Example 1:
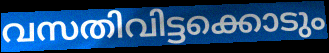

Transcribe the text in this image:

വസതിവിട്ടക്കൊടും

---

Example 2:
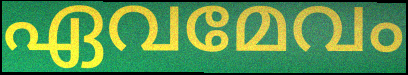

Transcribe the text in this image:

ഏവമേവം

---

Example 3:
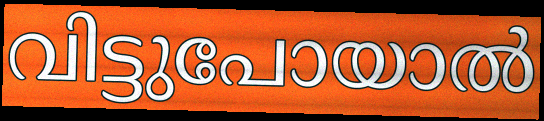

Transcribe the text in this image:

വിട്ടുപോയാൽ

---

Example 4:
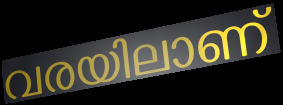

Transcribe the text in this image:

വരയിലാണ്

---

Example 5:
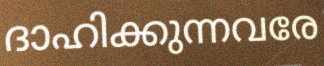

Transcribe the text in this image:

ദാഹിക്കുന്നവരേ